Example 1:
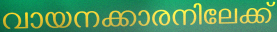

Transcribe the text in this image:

വായനക്കാരനിലേക്ക്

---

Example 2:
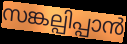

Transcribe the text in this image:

സങ്കല്പിപ്പാൻ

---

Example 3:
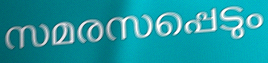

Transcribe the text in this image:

സമരസപ്പെടും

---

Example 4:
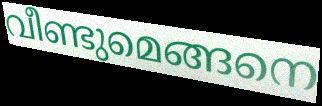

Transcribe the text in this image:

വീണ്ടുമെങ്ങനെ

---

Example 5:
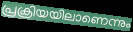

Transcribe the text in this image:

പ്രക്രിയയിലാണെന്നും